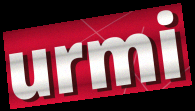
urmi